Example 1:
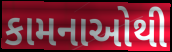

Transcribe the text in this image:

કામનાઓથી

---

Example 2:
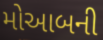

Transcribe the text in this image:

મોઆબની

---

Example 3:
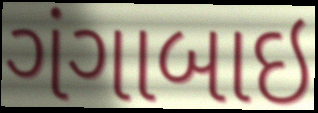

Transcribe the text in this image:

ગંગાબાઇ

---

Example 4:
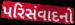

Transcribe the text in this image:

પરિસંવાદનો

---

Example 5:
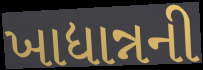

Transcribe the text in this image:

ખાદ્યાન્નની